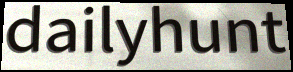
dailyhunt